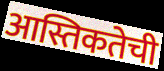
आस्तिकतेची